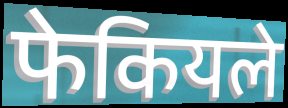
फेकियले